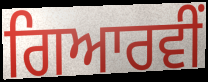
ਗਿਆਰਵੀਂ